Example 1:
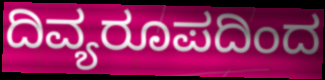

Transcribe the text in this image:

ದಿವ್ಯರೂಪದಿಂದ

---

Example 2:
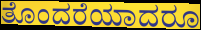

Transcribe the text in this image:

ತೊಂದರೆಯಾದರೂ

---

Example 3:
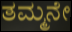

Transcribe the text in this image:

ತಮ್ಮನೇ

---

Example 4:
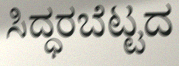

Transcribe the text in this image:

ಸಿದ್ಧರಬೆಟ್ಟದ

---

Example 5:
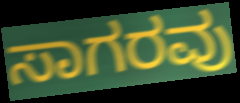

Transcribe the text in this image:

ಸಾಗರವು